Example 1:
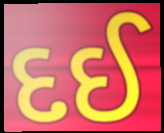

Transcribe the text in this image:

દઈ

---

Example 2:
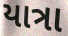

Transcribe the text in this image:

યાત્રા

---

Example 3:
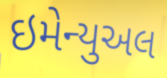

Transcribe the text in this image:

ઇમેન્યુઅલ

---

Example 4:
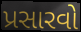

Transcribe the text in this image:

પ્રસારવો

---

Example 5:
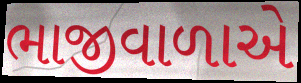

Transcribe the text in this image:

ભાજીવાળાએ